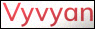
Vyvyan